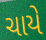
ચાયે